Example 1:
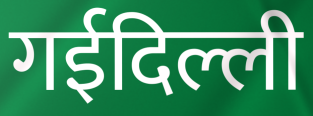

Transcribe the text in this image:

गईदिल्ली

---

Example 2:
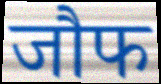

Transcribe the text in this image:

जौफ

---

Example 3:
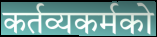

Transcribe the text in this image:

कर्तव्यकर्मको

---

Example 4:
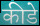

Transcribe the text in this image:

कीडे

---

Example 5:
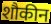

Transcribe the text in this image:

शौकीन